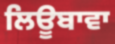
ਲਿਊਬਾਵਾ